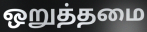
ஒறுத்தமை